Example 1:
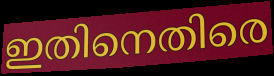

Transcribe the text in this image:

ഇതിനെതിരെ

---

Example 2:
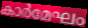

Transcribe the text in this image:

കാർമേഘം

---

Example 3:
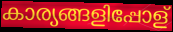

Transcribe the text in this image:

കാര്യങ്ങളിപ്പോള്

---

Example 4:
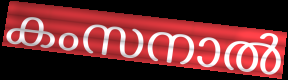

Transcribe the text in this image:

കംസനാൽ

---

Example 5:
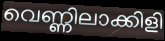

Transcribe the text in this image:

വെണ്ണിലാക്കിളി